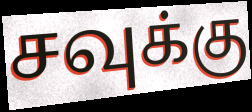
சவுக்கு